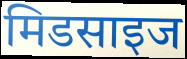
मिडसाइज